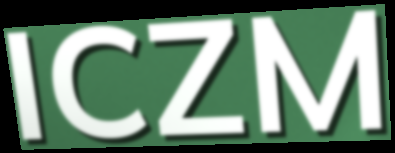
ICZM